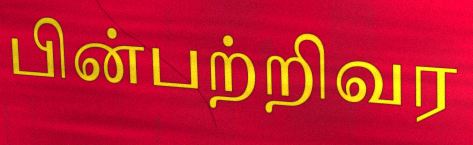
பின்பற்றிவர